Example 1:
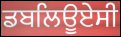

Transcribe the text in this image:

ਡਬਲਿਊਏਸੀ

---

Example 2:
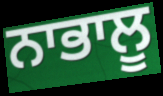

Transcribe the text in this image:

ਨਾਭਾਲੂ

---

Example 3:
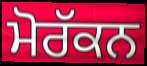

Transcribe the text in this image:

ਮੋਰੱਕਨ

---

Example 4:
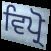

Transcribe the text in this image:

ਵਿਪ੍ਰੋ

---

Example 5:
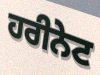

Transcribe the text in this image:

ਹਰੀਨੇਟ